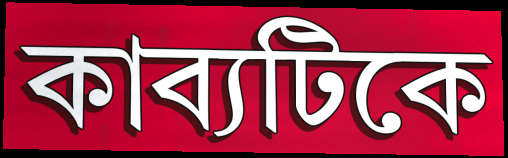
কাব্যটিকে